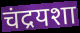
चंद्रयशा